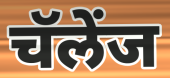
चॅलेंज